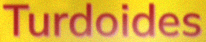
Turdoides